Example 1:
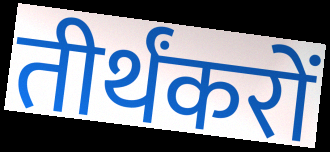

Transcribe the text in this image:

तीर्थंकरों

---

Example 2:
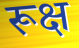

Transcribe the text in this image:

रूक्ष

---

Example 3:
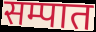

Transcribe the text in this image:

सम्पात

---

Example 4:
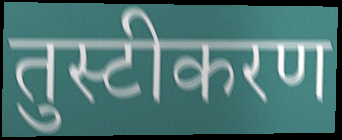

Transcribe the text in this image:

तुस्टीकरण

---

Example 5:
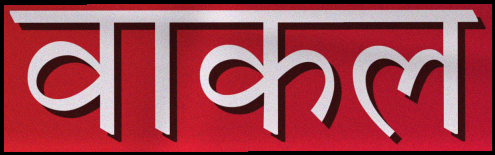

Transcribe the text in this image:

वाकल